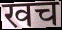
खच